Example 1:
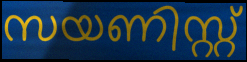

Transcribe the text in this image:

സയണിസ്റ്റ്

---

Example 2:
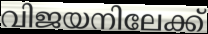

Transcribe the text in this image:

വിജയനിലേക്ക്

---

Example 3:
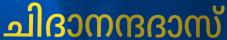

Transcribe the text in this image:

ചിദാനന്ദദാസ്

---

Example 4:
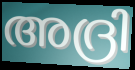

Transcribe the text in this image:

അദ്രി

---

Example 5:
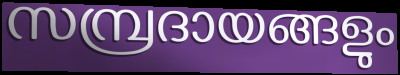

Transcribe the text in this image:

സമ്പ്രദായങ്ങളും